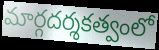
మార్గదర్శకత్వంలో